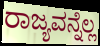
ರಾಜ್ಯವನ್ನೆಲ್ಲ